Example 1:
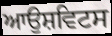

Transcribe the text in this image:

ਆਉਸ਼ਵਿਟਸ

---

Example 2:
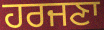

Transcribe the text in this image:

ਹਰਜਣਾ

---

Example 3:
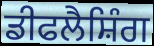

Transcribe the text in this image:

ਡੀਫਲੈਸ਼ਿੰਗ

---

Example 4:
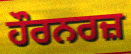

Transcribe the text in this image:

ਹੌਰਨਰਜ਼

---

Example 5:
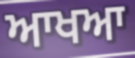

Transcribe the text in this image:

ਆਖਆ